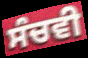
ਸੰਚਵੀ